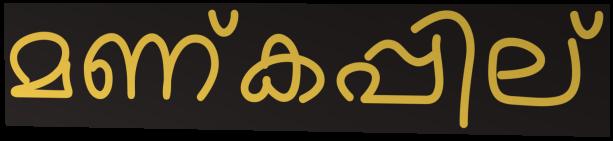
മണ്കപ്പില്